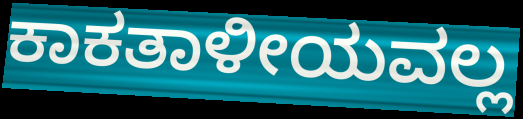
ಕಾಕತಾಳೀಯವಲ್ಲ